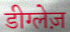
डीग्लेज़